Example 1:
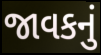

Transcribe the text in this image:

જાવકનું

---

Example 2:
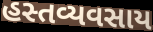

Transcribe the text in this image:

હસ્તવ્યવસાય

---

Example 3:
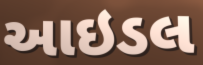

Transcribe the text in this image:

આઇડલ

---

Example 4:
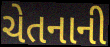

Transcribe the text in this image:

ચેતનાની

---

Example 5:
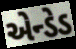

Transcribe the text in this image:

એન્ડેડ